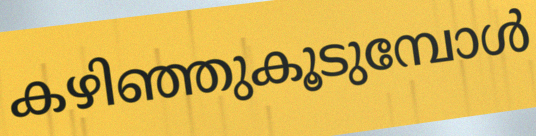
കഴിഞ്ഞുകൂടുമ്പോൾ